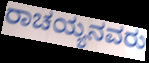
ರಾಚಯ್ಯನವರು